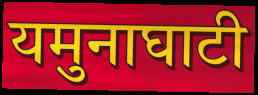
यमुनाघाटी